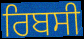
ਰਿਬਸੀ